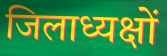
जिलाध्यक्षों